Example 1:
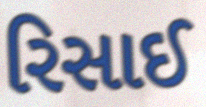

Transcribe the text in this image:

રિસાઈ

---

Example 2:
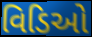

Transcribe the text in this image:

વિડિઓ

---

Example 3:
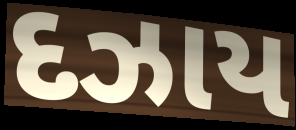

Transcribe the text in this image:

દઝાય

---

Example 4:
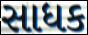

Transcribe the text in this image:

સાધક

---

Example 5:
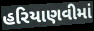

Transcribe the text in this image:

હરિયાણવીમાં